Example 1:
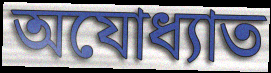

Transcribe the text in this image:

অযোধ্যাত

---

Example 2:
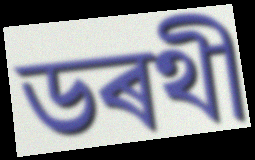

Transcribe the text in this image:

ডৰথী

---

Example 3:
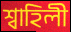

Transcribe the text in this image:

শ্বাহিলী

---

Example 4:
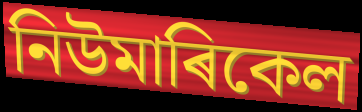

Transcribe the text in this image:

নিউমাৰিকেল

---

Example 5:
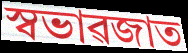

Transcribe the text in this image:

স্বভাৱজাত